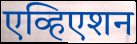
एव्हिएशन